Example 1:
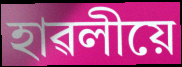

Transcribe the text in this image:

হাৱলীয়ে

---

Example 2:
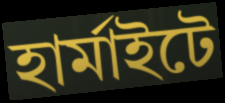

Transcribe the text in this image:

হাৰ্মাইটে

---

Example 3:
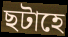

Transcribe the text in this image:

ছটাহে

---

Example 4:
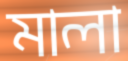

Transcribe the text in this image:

মালা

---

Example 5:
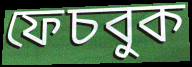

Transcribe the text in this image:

ফেচবুক